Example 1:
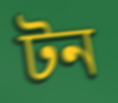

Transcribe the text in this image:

টন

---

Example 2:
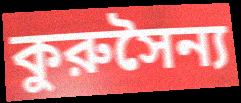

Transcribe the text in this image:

কুরুসৈন্য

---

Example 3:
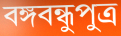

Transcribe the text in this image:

বঙ্গবন্ধুপুত্র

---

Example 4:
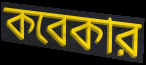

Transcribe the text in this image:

কবেকার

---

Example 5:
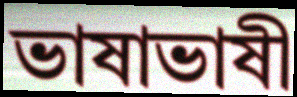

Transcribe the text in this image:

ভাষাভাষী